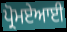
ਪ੍ਰੋਮਏਆਈ